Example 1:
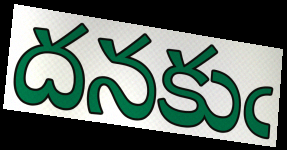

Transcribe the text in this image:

దనకుఁ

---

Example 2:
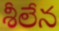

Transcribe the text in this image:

శీలేన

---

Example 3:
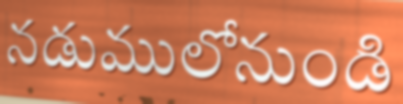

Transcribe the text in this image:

నడుములోనుండి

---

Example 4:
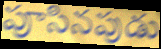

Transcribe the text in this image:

పూసినపుడు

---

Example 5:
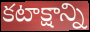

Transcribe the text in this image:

కటాక్షాన్ని